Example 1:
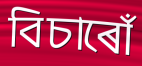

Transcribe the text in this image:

বিচাৰোঁ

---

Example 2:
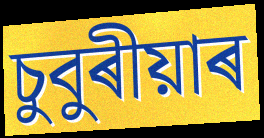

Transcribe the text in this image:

চুবুৰীয়াৰ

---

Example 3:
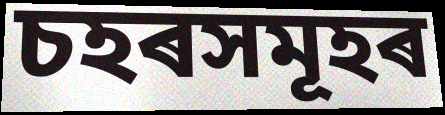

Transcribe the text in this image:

চহৰসমূহৰ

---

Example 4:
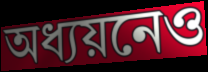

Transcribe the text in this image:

অধ্যয়নেও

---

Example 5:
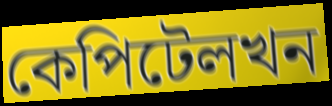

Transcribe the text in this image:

কেপিটেলখন